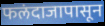
फलंदाजापासून